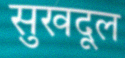
सुखदूल